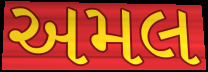
અમલ